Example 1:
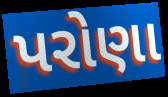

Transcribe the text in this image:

પરોણા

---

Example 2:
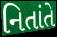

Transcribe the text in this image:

નિતાંતે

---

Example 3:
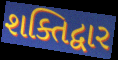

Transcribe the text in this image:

શક્તિદ્વાર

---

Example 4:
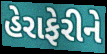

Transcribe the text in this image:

હેરાફેરીને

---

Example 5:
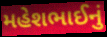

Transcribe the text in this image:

મહેશભાઈનું